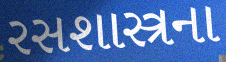
રસશાસ્ત્રના